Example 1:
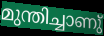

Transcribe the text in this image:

മുന്തിച്ചാണു്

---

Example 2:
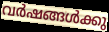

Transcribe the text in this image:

വർഷങ്ങൾക്കു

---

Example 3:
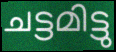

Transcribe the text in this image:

ചട്ടമിട്ടു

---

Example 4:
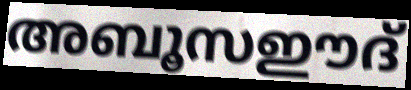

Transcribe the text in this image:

അബൂസഈദ്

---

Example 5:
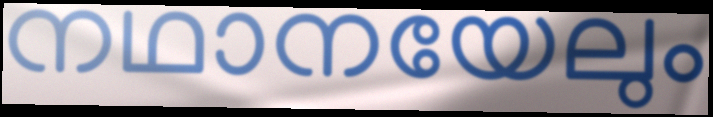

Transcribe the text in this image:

നഥാനയേലും